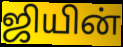
ஜியின்